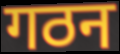
गठन